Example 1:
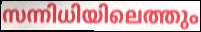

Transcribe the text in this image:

സന്നിധിയിലെത്തും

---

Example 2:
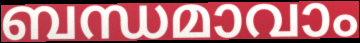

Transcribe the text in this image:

ബന്ധമാവാം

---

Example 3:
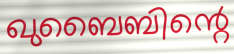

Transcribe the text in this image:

ഖുബൈബിന്റെ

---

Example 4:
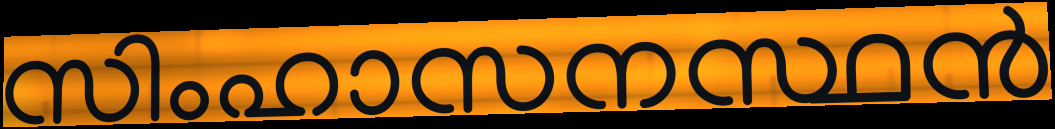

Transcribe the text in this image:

സിംഹാസനസ്ഥൻ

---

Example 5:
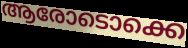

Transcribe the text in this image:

ആരോടൊക്കെ